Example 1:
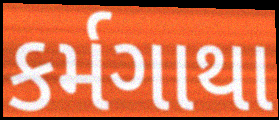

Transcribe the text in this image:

કર્મગાથા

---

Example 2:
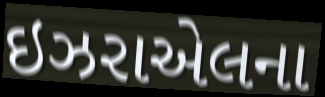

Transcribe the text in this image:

ઇઝરાએલના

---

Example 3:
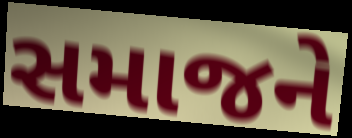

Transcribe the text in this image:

સમાજને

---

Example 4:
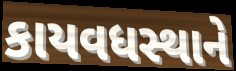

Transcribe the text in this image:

કાયવધસ્થાને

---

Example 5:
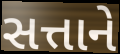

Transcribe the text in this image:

સત્તાને